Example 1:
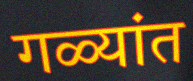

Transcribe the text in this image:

गळ्यांत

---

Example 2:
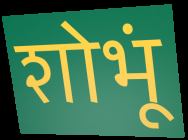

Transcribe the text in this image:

शोभूं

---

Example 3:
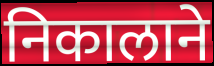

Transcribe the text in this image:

निकालाने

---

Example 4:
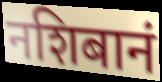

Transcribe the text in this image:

नशिबानं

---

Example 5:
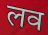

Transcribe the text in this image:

लव